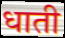
धाती